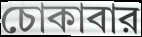
চোকাবার